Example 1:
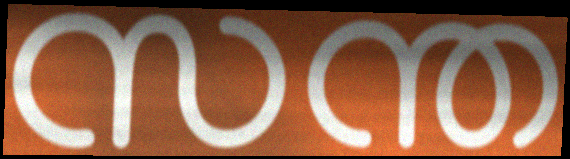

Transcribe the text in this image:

സന്ത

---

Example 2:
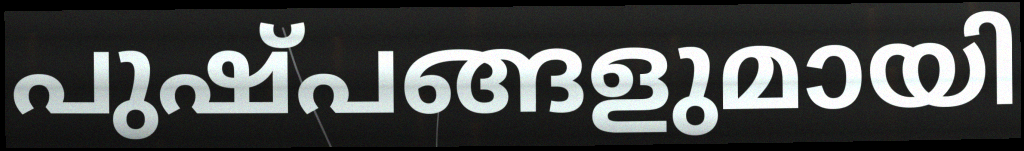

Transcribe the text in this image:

പുഷ്പങ്ങളുമായി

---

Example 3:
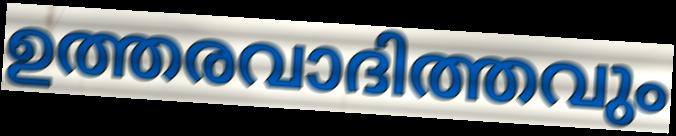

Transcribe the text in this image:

ഉത്തരവാദിത്തവും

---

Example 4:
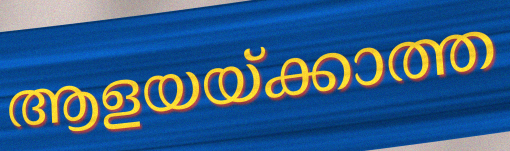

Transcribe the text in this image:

ആളയയ്ക്കാത്ത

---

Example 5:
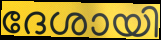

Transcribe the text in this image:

ദേശായി